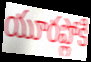
యూరప్లోకి